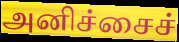
அனிச்சைச்